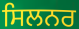
ਸਿਲਨਰ